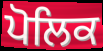
ਪੋਲਿਕ